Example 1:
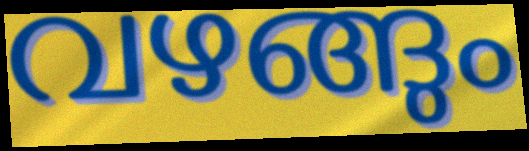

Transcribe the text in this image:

വഴങ്ങും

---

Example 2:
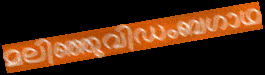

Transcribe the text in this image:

മലിഞ്ഞുവിഡംബഗാഥ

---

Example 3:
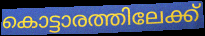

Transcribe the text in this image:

കൊട്ടാരത്തിലേക്ക്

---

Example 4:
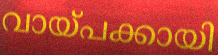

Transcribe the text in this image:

വായ്പക്കായി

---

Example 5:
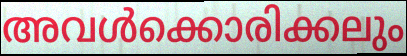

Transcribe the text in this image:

അവൾക്കൊരിക്കലും